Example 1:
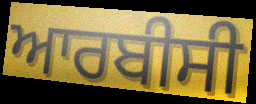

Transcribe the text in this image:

ਆਰਬੀਸੀ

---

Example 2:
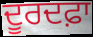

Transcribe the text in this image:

ਦੂਰਦਫ਼ਾ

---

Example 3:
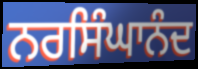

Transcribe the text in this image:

ਨਰਸਿੰਘਾਨੰਦ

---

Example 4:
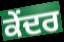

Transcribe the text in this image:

ਕੇੰਦਰ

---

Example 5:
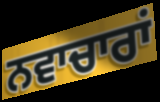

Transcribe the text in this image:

ਨਵਾਚਾਰਾਂ